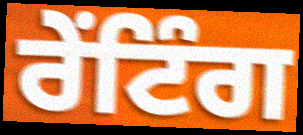
ਰੇਂਟਿੰਗ